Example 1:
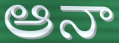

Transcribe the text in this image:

ఆనా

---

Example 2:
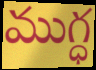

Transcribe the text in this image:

ముగ్ధ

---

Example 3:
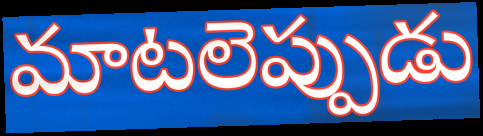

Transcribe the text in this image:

మాటలెప్పుడు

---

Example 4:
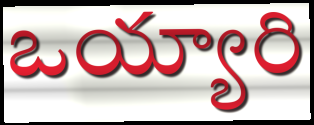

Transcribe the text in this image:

ఒయ్యారి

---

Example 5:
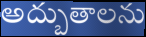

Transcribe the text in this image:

అద్బుతాలను